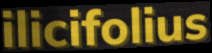
ilicifolius